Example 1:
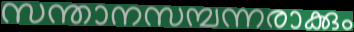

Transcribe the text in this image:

സന്താനസമ്പന്നരാക്കും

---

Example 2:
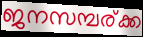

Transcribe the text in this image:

ജനസമ്പര്ക്ക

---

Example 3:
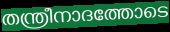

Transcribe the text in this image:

തന്ത്രീനാദത്തോടെ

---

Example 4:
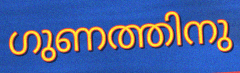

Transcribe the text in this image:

ഗുണത്തിനു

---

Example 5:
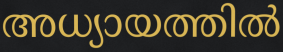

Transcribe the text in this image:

അധ്യായത്തിൽ